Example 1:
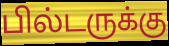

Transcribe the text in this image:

பில்டருக்கு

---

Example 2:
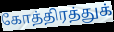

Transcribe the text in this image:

கோத்திரத்துக்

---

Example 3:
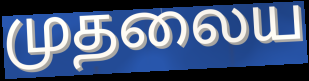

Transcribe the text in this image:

முதலைய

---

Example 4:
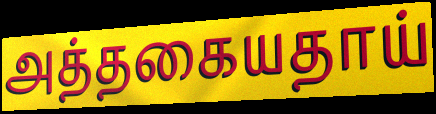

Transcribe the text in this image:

அத்தகையதாய்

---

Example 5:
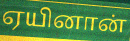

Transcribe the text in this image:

ஏயினான்